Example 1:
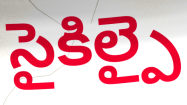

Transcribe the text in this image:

సైకిల్పై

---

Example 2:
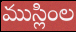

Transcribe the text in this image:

ముస్లింల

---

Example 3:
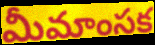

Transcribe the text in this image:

మీమాంసక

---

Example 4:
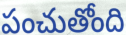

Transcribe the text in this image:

పంచుతోంది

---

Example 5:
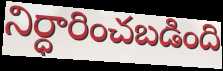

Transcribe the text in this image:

నిర్ధారించబడింది